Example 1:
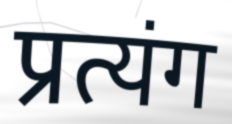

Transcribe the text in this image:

प्रत्यंग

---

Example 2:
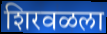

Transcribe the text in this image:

शिरवळला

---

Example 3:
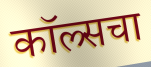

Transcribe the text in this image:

कॉल्सचा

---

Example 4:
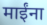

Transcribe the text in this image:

माईंना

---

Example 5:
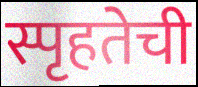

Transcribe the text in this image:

स्पृहतेची